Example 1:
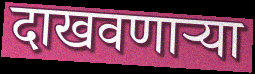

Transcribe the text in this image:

दाखवणाऱ्या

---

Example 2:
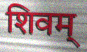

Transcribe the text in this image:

शिवम्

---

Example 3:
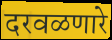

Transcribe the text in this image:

दरवळणारे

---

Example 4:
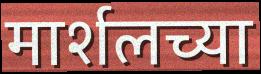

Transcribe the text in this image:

मार्शलच्या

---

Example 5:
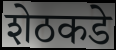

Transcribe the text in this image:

शेठकडे